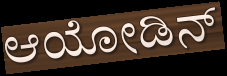
ಆಯೋಡಿನ್